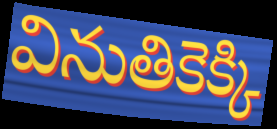
వినుతికెక్కి